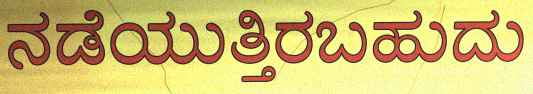
ನಡೆಯುತ್ತಿರಬಹುದು